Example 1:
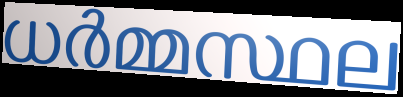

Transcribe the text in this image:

ധർമ്മസ്ഥല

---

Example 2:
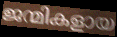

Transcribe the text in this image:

ജന്മികളായ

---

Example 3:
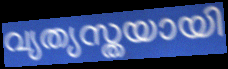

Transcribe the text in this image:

വ്യത്യസ്തയായി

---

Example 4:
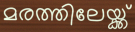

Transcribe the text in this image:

മരത്തിലേയ്ക്ക്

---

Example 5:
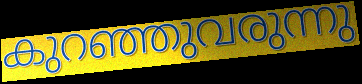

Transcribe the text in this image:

കുറഞ്ഞുവരുന്നു